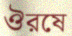
ঔরষে